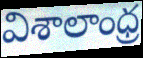
విశాలాంధ్ర